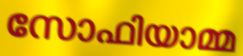
സോഫിയാമ്മ